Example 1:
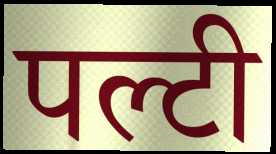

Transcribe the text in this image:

पल्टी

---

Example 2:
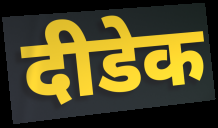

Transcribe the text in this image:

दीडेक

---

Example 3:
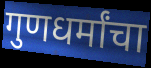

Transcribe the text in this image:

गुणधर्मांचा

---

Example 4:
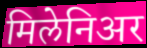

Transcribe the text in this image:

मिलेनिअर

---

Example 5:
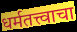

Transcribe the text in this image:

धर्मतत्त्वाचा